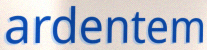
ardentem